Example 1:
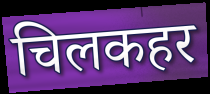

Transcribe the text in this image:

चिलकहर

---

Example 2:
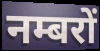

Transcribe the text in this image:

नम्बरों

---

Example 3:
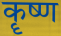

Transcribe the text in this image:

कॄष्ण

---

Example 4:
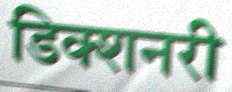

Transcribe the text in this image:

डिक्‍शनरी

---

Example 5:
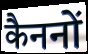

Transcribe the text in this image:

कैननों